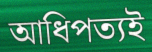
আধিপত্যই